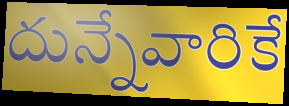
దున్నేవారికే